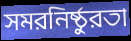
সমরনিষ্ঠুরতা